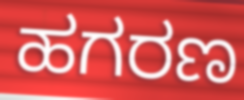
ಹಗರಣ